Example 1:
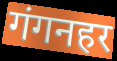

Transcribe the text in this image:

गंगनहर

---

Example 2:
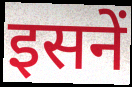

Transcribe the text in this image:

इसनें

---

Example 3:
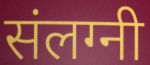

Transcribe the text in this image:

संलग्नी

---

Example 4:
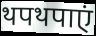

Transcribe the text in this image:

थपथपाएं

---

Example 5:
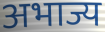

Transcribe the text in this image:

अभाज्य